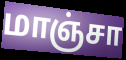
மாஞ்சா